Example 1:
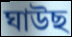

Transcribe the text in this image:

ঘাউছ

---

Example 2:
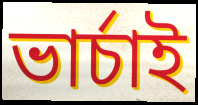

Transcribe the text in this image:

ভাৰ্চাই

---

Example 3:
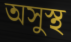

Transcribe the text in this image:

অসুস্থ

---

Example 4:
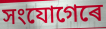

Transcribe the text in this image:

সংযোগেৰে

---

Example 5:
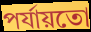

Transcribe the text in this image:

পৰ্যায়তো